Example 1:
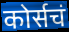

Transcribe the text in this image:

कोर्सचं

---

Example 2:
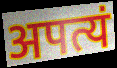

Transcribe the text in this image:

अपत्यं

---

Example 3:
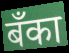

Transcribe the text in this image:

बँका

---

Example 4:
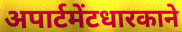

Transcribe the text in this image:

अपार्टमेंटधारकाने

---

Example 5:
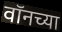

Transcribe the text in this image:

वॉनच्या